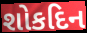
શોકદિન